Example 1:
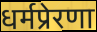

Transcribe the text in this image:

धर्मप्रेरणा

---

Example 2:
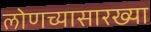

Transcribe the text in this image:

लोणच्यासारख्या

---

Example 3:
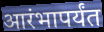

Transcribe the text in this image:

आरंभापर्यंत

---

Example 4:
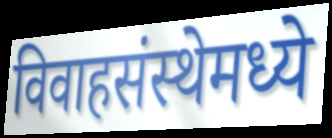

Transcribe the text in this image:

विवाहसंस्थेमध्ये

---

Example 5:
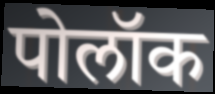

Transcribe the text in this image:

पोलॉक